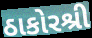
ઠાકોરશ્રી